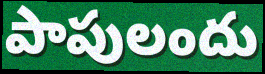
పాపులందు